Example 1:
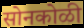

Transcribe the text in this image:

सोनकोळी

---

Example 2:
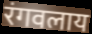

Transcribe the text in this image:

रंगवलाय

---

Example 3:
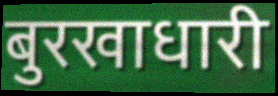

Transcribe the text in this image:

बुरखाधारी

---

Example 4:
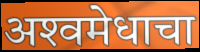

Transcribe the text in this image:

अश्‍वमेधाचा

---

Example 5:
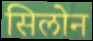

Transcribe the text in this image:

सिलोन